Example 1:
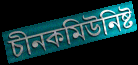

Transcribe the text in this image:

চীনকমিউনিষ্ট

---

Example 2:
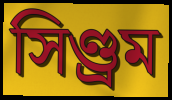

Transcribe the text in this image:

সিণ্ড্ৰম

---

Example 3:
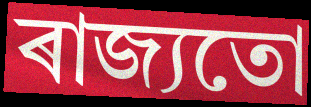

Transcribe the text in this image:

ৰাজ্যতো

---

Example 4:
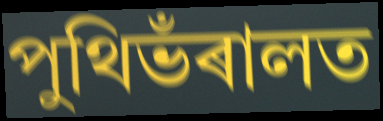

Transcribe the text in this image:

পুথিভঁৰালত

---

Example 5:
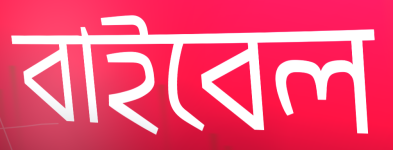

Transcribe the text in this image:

বাইবেল